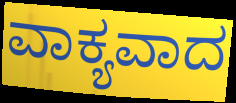
ವಾಕ್ಯವಾದ